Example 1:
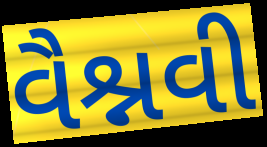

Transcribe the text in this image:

વૈશ્નવી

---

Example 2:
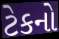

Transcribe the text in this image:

ટેકનો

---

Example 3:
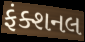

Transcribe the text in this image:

ફંક્શનલ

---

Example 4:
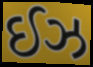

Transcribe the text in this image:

ઈઝ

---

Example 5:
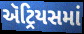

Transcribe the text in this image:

ઍટ્રિયસમાં